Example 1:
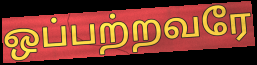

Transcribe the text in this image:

ஒப்பற்றவரே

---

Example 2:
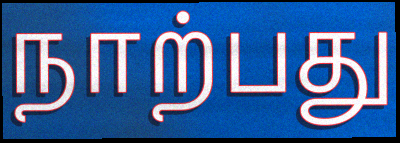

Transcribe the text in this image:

நாற்பது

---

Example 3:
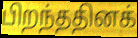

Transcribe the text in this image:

பிறந்ததினக்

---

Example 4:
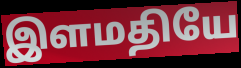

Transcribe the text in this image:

இளமதியே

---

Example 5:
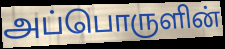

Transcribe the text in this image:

அப்பொருளின்